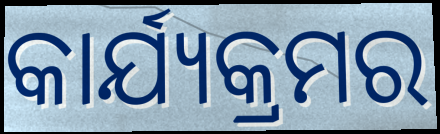
କାର୍ଯ୍ୟକ୍ରମର